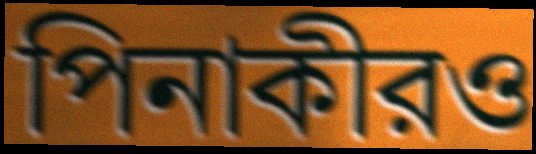
পিনাকীরও